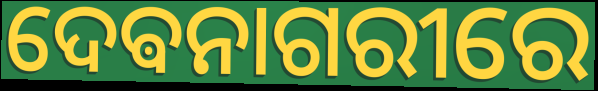
ଦେଵନାଗରୀରେ